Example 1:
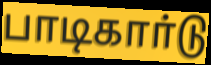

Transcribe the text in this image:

பாடிகார்டு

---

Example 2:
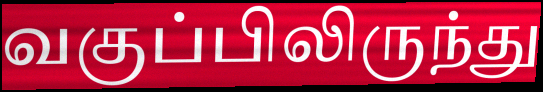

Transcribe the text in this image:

வகுப்பிலிருந்து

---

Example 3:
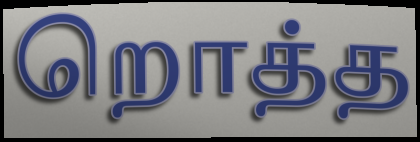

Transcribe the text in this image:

றொத்த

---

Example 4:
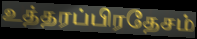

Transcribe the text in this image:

உத்தரப்பிரதேசம்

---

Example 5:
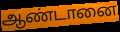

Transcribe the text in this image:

ஆண்டானை